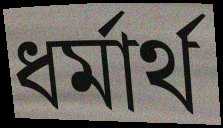
ধর্মার্থ